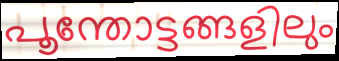
പൂന്തോട്ടങ്ങളിലും